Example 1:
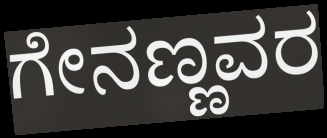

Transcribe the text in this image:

ಗೇನಣ್ಣವರ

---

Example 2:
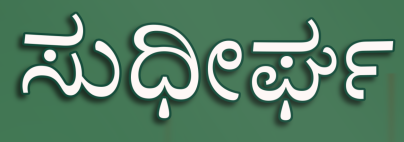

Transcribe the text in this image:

ಸುಧೀರ್ಘ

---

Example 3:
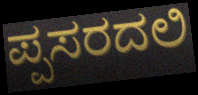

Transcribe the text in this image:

ಪ್ಪಸರದಲಿ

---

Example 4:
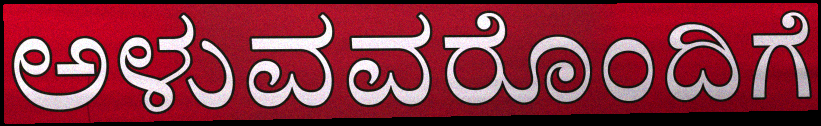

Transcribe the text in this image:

ಅಳುವವರೊಂದಿಗೆ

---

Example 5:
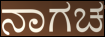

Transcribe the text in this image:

ನಾಗಚ